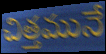
చిత్తమునే